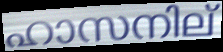
ഹാസനില്